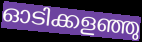
ഓടിക്കളഞ്ഞു